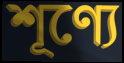
শূণ্যে